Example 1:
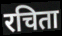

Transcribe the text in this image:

रचिता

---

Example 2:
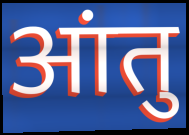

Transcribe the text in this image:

आंतु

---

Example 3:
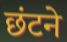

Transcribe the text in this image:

छंटने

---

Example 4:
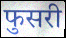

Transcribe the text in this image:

फुसरी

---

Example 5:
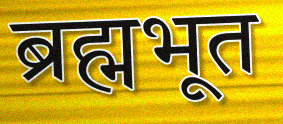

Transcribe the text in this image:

ब्रह्मभूत